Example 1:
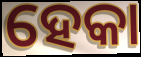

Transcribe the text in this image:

ହେକା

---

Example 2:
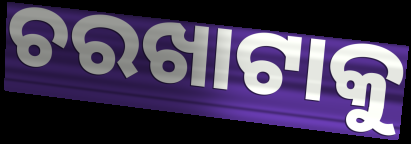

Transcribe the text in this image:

ଚରଖାଟାକୁ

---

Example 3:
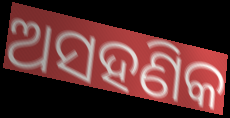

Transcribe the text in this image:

ଅସହଣିକ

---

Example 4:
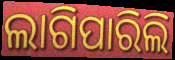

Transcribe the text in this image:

ଲାଗିପାରିଲି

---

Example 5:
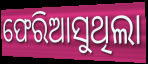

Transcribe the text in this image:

ଫେରିଆସୁଥିଲା